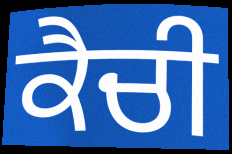
ਕੈਚੀ